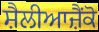
ਸ਼ੈਲੀਆਜ਼ੈਂਕੋ